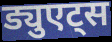
ड्युएट्स